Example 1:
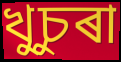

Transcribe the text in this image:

খুচুৰা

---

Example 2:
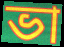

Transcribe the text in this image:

ভা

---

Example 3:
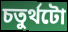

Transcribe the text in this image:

চতুৰ্থটো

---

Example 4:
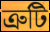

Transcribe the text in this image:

ত্ৰুটি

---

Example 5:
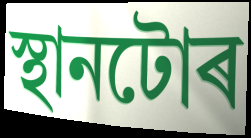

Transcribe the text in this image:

স্থানটোৰ